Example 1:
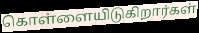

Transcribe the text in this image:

கொள்ளையிடுகிறார்கள்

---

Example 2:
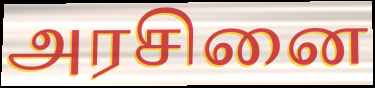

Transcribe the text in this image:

அரசினை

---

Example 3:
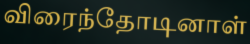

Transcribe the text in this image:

விரைந்தோடினாள்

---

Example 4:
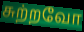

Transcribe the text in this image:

சுற்றவோ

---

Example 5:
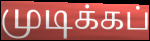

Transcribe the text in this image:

முடிக்கப்